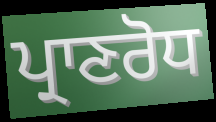
ਪ੍ਰਾਣਰੋਧ